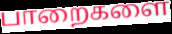
பாறைகளை